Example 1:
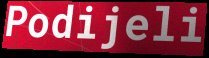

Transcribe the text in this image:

Podijeli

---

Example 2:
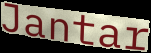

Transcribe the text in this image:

Jantar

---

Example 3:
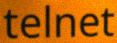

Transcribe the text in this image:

telnet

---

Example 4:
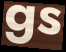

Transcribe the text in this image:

gs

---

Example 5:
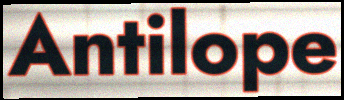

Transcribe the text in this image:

Antilope